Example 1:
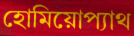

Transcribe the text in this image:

হোমিয়োপ্যাথ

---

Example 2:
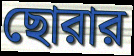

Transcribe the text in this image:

ছোরার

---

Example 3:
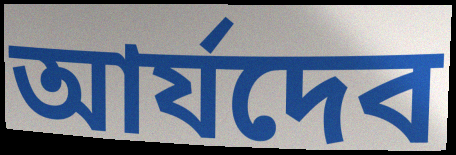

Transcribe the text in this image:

আর্যদেব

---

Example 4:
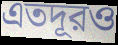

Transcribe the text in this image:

এতদূরও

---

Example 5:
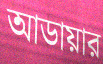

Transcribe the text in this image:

আডায়ার